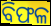
ବିଫଳ